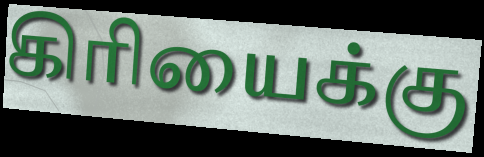
கிரியைக்கு